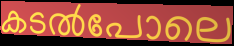
കടൽപോലെ